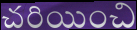
చరియించి